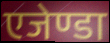
एजेण्डा